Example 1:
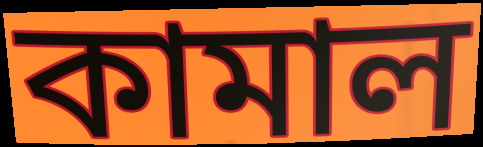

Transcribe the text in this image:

কামাল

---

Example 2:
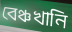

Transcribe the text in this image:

বেঞ্চখানি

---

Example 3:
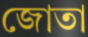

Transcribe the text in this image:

জোতা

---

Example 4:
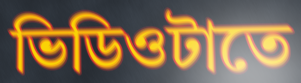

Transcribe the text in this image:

ভিডিওটাতে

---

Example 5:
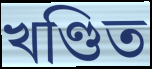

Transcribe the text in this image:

খণ্ডিত